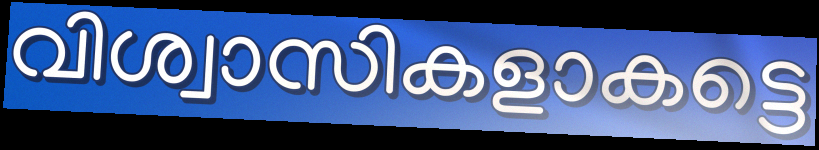
വിശ്വാസികളാകട്ടെ